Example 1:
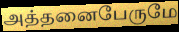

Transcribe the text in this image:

அத்தனைபேருமே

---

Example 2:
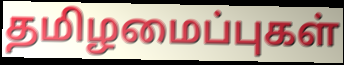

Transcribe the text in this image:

தமிழமைப்புகள்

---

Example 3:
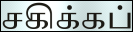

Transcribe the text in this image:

சகிக்கப்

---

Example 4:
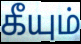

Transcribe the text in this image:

கீயும்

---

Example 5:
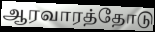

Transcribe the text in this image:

ஆரவாரத்தோடு